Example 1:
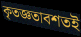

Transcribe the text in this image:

কৃতজ্ঞতাবশতই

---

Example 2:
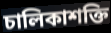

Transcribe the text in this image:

চালিকাশক্তি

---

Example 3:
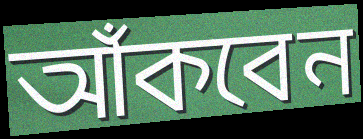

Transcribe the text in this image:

আঁকবেন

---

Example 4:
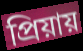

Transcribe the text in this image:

প্রিয়ায়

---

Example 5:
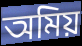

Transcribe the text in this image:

অমিয়